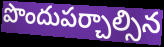
పొందుపర్చాల్సిన